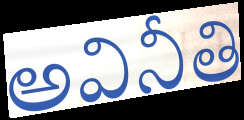
అవినీతి